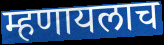
म्हणायलाच